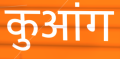
कुआंग